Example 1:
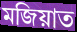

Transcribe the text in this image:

মজিয়াত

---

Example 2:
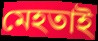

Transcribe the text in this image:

মেহতাই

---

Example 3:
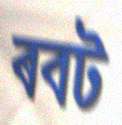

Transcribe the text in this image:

ৰবট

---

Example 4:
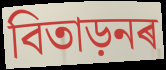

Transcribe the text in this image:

বিতাড়নৰ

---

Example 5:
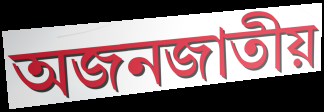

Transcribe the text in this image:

অজনজাতীয়